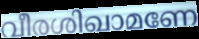
വീരശിഖാമണേ